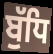
ਬੁੱਧਿ